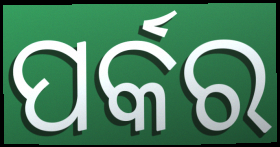
ପର୍କର